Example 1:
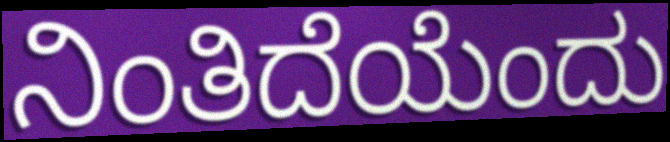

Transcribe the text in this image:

ನಿಂತಿದೆಯೆಂದು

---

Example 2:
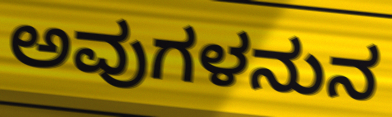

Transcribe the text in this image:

ಅವುಗಳನುನ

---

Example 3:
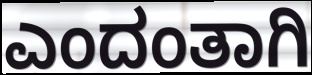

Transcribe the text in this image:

ಎಂದಂತಾಗಿ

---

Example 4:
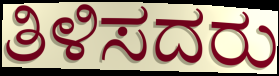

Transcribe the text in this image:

ತಿಳಿಸದರು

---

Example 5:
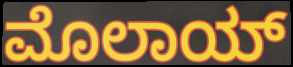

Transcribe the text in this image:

ಮೊಲಾಯ್